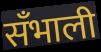
सँभाली